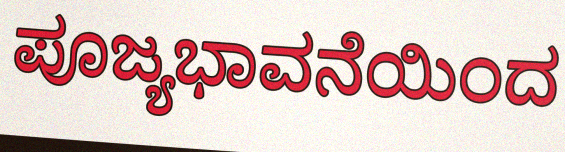
ಪೂಜ್ಯಭಾವನೆಯಿಂದ